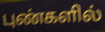
புண்களில்